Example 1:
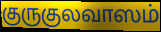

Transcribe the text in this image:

குருகுலவாஸம்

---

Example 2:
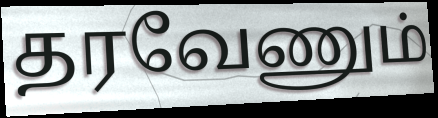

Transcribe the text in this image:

தரவேணும்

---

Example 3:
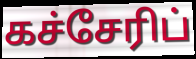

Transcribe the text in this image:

கச்சேரிப்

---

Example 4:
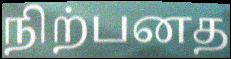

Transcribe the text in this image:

நிற்பனத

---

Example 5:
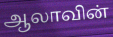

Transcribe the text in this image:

ஆலாவின்